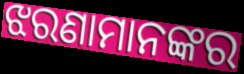
ଝରଣାମାନଙ୍କର